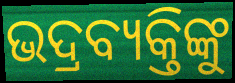
ଭଦ୍ରବ୍ୟକ୍ତିଙ୍କୁ